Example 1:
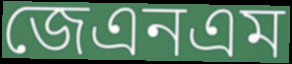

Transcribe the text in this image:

জেএনএম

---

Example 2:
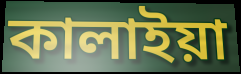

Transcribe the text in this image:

কালাইয়া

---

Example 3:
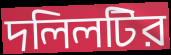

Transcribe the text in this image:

দলিলটির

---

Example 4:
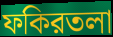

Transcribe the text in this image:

ফকিরতলা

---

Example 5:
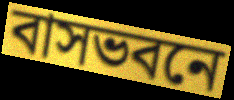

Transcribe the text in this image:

বাসভবনে